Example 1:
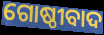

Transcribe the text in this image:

ଗୋଷ୍ଠୀବାଦ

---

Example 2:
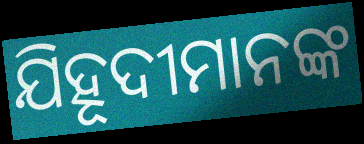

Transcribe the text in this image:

ଯିହୂଦୀମାନଙ୍କ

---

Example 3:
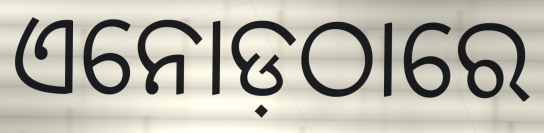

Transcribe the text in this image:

ଏନୋଡ଼ଠାରେ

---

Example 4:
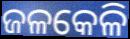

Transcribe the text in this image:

ଜଳକେଳି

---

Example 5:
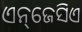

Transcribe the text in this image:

ଏନ୍‌ଜେସିଏ